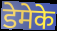
डेमेके